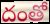
దంతో